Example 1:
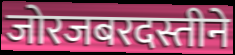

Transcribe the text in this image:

जोरजबरदस्तीने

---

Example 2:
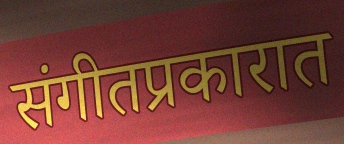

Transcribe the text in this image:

संगीतप्रकारात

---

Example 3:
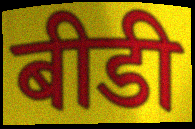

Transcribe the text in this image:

बीडी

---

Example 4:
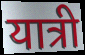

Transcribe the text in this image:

यात्री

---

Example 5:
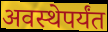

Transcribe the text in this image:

अवस्थेपर्यंत